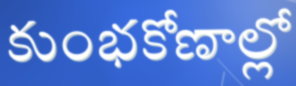
కుంభకోణాల్లో